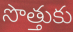
సొత్తుకు